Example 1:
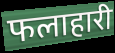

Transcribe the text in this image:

फलाहारी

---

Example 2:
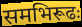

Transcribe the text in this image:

समभिरूढः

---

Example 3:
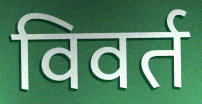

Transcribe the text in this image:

विवर्त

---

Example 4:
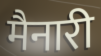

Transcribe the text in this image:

मैनारी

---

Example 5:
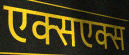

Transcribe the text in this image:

एक्सएक्स